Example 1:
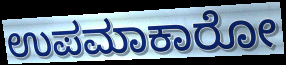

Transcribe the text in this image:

ಉಪಮಾಕಾರೋ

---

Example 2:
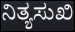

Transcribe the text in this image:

ನಿತ್ಯಸುಖಿ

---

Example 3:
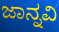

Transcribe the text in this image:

ಜಾನ್ನವಿ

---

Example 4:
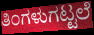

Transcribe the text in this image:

ತಿಂಗಳುಗಟ್ಟಲೆ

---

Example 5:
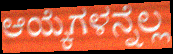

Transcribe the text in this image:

ಆಯ್ಕೆಗಳನ್ನೆಲ್ಲ